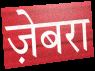
ज़ेबरा